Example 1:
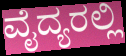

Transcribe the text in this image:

ವೈದ್ಯರಲ್ಲಿ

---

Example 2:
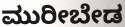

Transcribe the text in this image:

ಮುರೀಬೇಡ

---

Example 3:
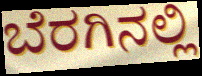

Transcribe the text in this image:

ಬೆರಗಿನಲ್ಲಿ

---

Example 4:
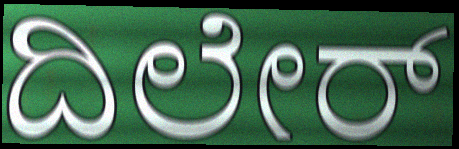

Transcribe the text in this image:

ದಿಲೇರ್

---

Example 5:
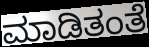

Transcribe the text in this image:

ಮಾಡಿತಂತೆ